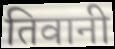
तिवानी